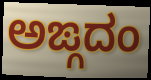
ಅಙ್ಗದಂ